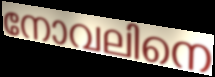
നോവലിനെ